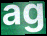
ag